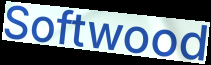
Softwood